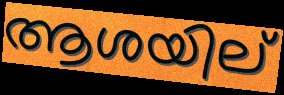
ആശയില്